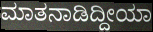
ಮಾತನಾಡಿದ್ದೀಯಾ